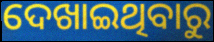
ଦେଖାଇଥିବାରୁ